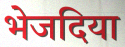
भेजदिया